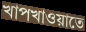
খাপখাওয়াতে